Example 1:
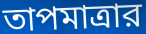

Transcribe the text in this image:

তাপমাত্রার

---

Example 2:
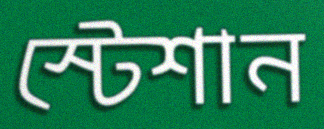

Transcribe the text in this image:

স্টেশান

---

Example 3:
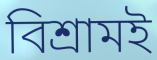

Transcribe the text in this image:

বিশ্রামই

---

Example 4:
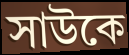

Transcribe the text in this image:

সাউকে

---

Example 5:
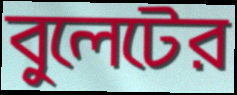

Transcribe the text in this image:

বুলেটের